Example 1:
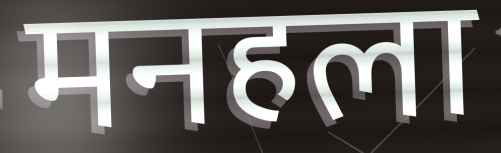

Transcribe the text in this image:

मनहला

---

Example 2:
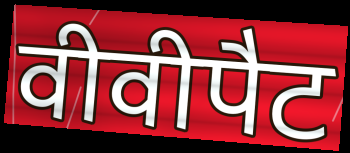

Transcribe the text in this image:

वीवीपैट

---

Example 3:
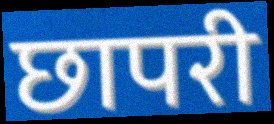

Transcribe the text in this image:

छापरी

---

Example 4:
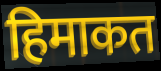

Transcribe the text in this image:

हिमाकत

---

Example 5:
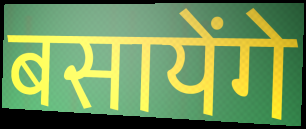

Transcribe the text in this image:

बसायेंगे